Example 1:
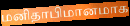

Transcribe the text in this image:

மனிதாபிமானமாக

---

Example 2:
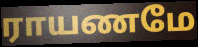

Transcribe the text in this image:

ராயணமே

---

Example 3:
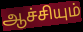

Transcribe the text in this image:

ஆச்சியும்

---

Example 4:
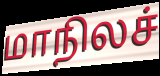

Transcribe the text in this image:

மாநிலச்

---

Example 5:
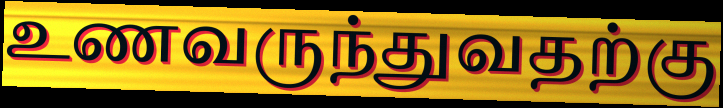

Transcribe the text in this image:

உணவருந்துவதற்கு